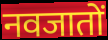
नवजातों